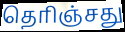
தெரிஞ்சது